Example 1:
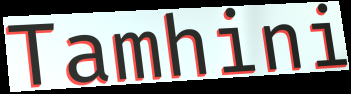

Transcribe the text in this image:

Tamhini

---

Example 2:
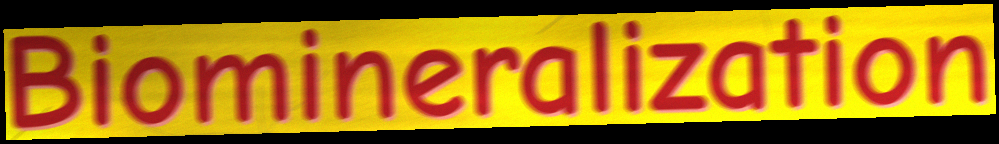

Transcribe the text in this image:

Biomineralization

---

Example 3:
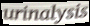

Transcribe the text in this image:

urinalysis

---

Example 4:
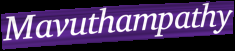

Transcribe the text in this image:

Mavuthampathy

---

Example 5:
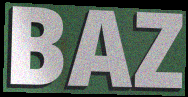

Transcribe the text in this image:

BAZ